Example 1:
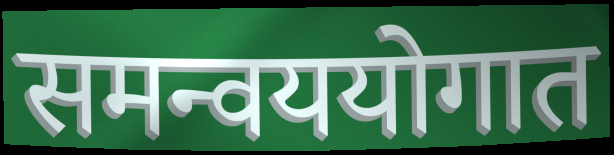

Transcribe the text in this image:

समन्वययोगात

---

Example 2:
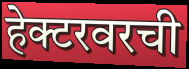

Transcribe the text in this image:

हेक्टरवरची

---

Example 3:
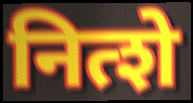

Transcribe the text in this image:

नित्शे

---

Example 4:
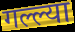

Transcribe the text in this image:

गल्ल्या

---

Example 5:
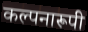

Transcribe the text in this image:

कल्पनारूपी